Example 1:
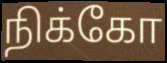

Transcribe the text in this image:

நிக்கோ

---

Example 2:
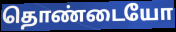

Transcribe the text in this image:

தொண்டையோ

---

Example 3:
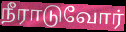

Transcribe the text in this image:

நீராடுவோர்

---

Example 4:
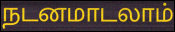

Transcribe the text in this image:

நடனமாடலாம்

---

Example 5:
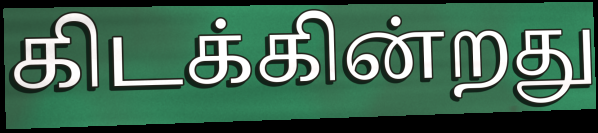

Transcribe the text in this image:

கிடக்கின்றது